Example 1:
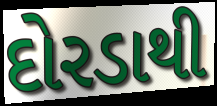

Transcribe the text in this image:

દોરડાથી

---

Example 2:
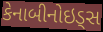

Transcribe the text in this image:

કેનાબીનોઇડ્સ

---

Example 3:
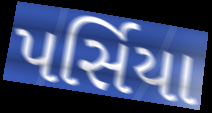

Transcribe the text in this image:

પર્સિયા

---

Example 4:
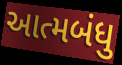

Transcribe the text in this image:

આત્મબંધુ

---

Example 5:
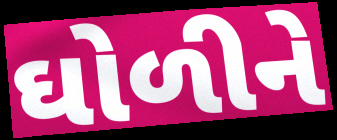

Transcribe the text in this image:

ઘોળીને